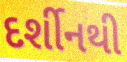
દર્શીનથી